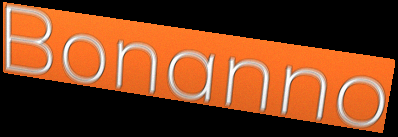
Bonanno